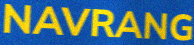
NAVRANG